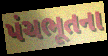
પંચભૂતના